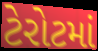
ટેરોટમાં